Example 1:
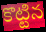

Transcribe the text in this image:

కొట్టిన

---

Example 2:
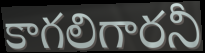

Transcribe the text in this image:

కాగలిగారనీ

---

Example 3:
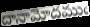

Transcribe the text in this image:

దానామోదముఁ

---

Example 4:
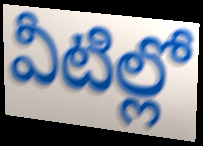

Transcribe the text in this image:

వీటిల్లో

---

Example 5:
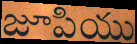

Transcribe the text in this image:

జూపియు